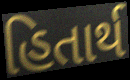
હિતાર્થ